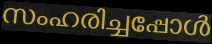
സംഹരിച്ചപ്പോൾ